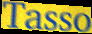
Tasso